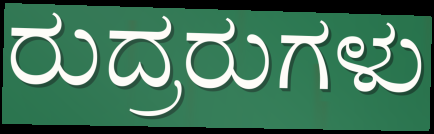
ರುದ್ರರುಗಳು